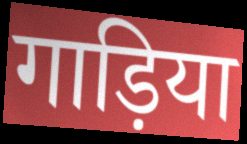
गाड़िया